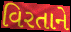
વિરતાને